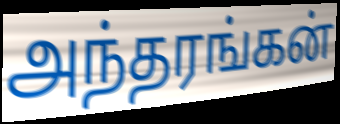
அந்தரங்கன்